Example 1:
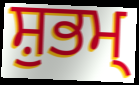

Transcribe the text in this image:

ਸ਼ੁਭਮ੍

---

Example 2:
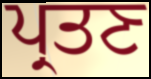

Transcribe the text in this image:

ਪ੍ਰਤਣ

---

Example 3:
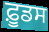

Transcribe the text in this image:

ਫ਼ੂਡਸ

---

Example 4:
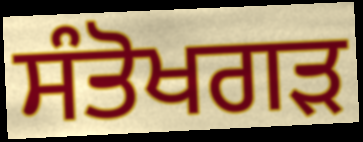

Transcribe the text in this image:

ਸੰਤੋਖਗੜ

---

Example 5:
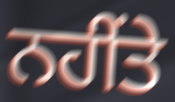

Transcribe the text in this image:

ਨਹੀਂਤੇ